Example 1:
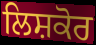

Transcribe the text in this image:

ਲਿਸ਼ਕੋਰ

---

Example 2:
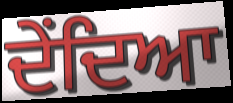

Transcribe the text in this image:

ਦੇਂਦਿਆ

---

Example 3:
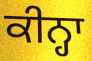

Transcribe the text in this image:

ਕੀਨ੍ਹ੍ਹਾ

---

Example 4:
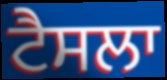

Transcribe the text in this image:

ਟੈਸਲਾ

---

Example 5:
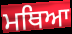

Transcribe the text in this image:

ਮਥਿਆ